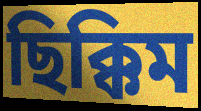
ছিক্কিম